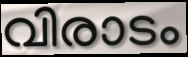
വിരാടം